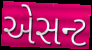
એસન્ટ